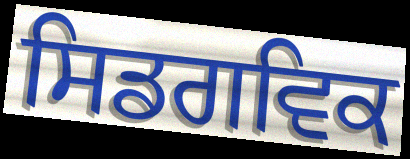
ਸਿਡਗਵਿਕ